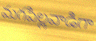
మగపిల్లవాడిగా